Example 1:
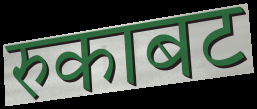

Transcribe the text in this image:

रुकाबट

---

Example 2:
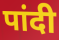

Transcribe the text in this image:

पांदी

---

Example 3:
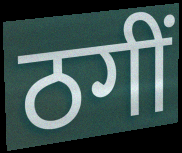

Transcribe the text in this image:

ठगीं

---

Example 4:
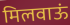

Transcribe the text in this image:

मिलवाऊं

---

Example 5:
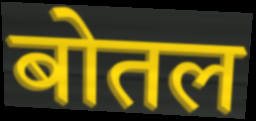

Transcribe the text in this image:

बोतल